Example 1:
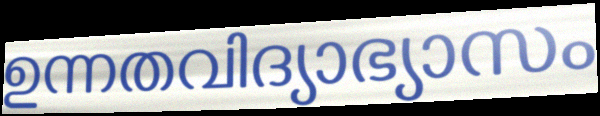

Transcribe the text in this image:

ഉന്നതവിദ്യാഭ്യാസം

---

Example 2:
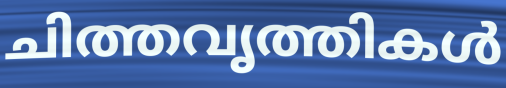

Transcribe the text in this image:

ചിത്തവൃത്തികൾ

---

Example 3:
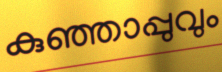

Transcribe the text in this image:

കുഞ്ഞാപ്പുവും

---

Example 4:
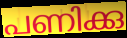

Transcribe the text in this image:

പണിക്കു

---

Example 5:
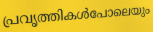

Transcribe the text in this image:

പ്രവൃത്തികൾപോലെയും